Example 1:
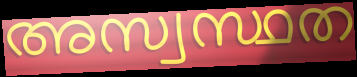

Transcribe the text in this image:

അസ്വസ്ഥത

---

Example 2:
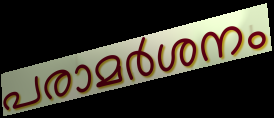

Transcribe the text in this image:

പരാമർശനം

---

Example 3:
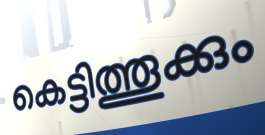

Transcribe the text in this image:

കെട്ടിത്തൂക്കും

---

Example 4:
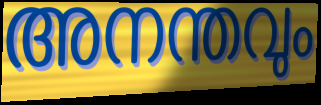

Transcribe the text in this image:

അനന്തവും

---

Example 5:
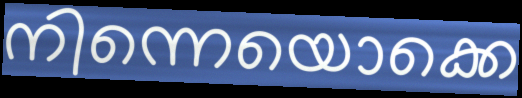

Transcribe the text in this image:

നിന്നെയൊക്കെ